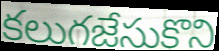
కలుగజేసుకొని